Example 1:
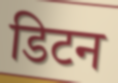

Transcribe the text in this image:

डिटन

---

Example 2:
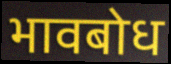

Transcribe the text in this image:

भावबोध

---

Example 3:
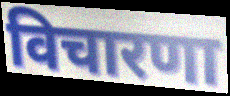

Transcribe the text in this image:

विचारणा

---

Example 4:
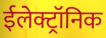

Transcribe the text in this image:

ईलेक्ट्रॉनिक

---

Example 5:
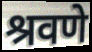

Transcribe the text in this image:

श्रवणे